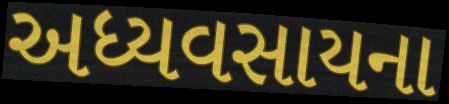
અધ્યવસાયના